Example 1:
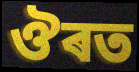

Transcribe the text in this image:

ঔৰত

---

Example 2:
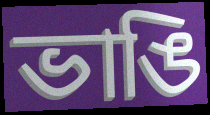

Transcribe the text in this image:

ভাঙি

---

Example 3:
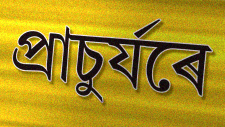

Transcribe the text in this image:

প্ৰাচুৰ্যৰে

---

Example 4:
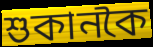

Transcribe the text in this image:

শুকানকৈ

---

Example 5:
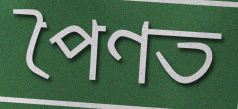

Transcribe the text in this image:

পৈণত